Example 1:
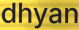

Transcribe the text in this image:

dhyan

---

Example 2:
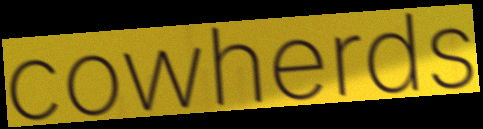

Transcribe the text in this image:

cowherds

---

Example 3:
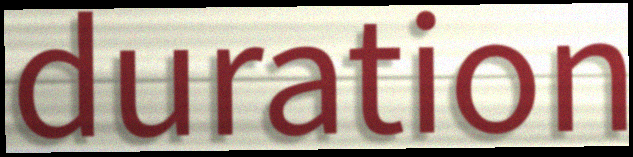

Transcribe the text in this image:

duration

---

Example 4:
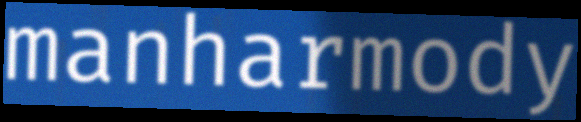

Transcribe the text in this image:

manharmody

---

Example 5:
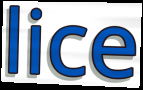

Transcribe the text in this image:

lice